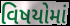
વિષયોમાં